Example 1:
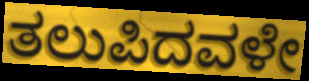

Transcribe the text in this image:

ತಲುಪಿದವಳೇ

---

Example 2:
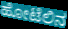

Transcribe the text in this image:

ಹೋಟೆಲಿನ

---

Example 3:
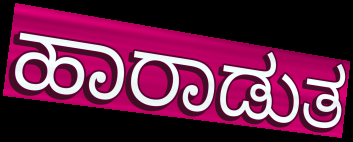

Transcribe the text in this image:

ಹಾರಾಡುತ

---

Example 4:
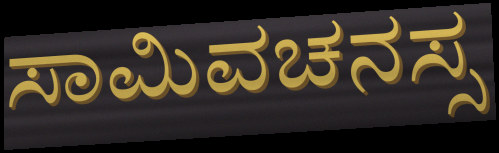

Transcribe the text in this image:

ಸಾಮಿವಚನಸ್ಸ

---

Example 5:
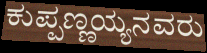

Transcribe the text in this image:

ಕುಪ್ಪಣ್ಣಯ್ಯನವರು